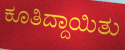
ಕೂತಿದ್ದಾಯಿತು